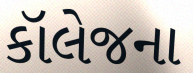
કૉલેજના